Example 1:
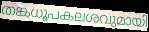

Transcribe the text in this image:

തങ്കധൂപകലശവുമായി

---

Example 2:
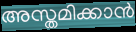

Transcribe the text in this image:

അസ്തമിക്കാൻ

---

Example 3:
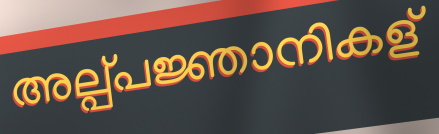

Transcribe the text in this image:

അല്പ്പജ്ഞാനികള്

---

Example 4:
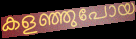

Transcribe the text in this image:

കളഞ്ഞുപോയ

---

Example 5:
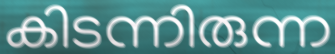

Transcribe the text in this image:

കിടന്നിരുന്ന